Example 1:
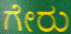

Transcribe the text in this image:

ಗೇರು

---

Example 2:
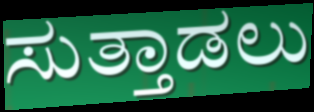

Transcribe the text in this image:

ಸುತ್ತಾಡಲು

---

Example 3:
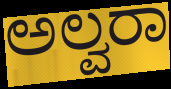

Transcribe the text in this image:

ಅಲ್ವರಾ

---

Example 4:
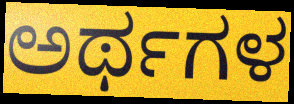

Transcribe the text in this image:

ಅರ್ಥಗಳ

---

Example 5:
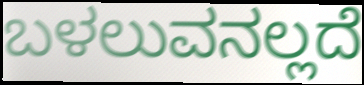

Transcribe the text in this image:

ಬಳಲುವನಲ್ಲದೆ